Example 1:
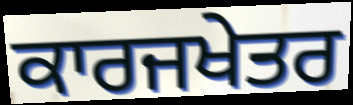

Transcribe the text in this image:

ਕਾਰਜਖੇਤਰ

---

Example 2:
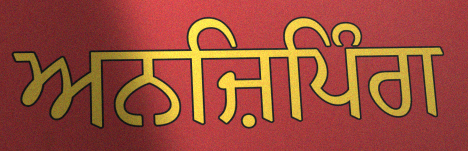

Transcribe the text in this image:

ਅਨਜ਼ਿਪਿੰਗ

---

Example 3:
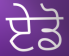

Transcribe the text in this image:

ਏਡੋ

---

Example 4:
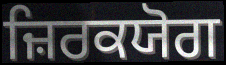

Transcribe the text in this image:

ਜ਼ਿਰਕਯੋਗ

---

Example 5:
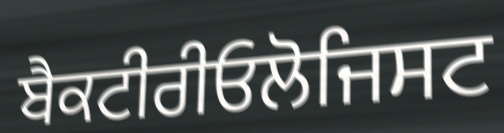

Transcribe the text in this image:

ਬੈਕਟੀਰੀਓਲੋਜਿਸਟ